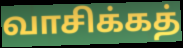
வாசிக்கத்